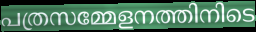
പത്രസമ്മേളനത്തിനിടെ